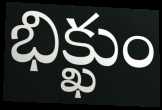
భిక్ఖుం